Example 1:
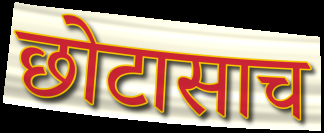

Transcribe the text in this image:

छोटासाच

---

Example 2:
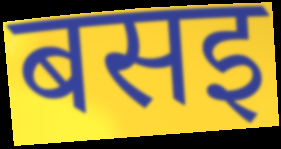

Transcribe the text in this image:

बसइ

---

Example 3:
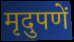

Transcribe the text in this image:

मृदुपणें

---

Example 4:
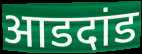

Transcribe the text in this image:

आडदांड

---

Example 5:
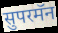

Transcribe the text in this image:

सुपरमॅन